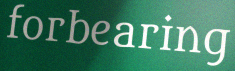
forbearing